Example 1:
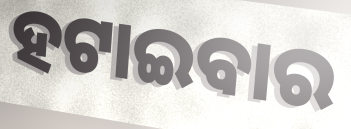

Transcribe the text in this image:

ହଟାଇବାର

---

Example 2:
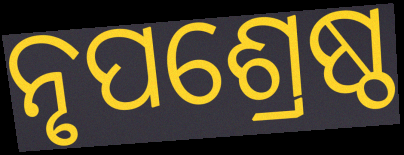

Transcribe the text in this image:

ନୃପଶ୍ରେଷ୍ଠ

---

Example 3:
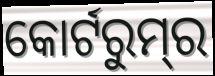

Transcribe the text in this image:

କୋର୍ଟରୁମ୍‌ର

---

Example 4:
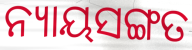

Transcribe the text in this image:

ନ୍ୟାୟସଙ୍ଗତ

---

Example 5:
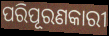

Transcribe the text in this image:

ପରିପୂରଣକାରୀ